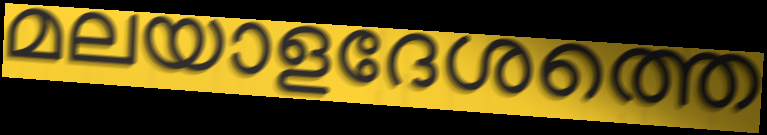
മലയാളദേശത്തെ